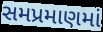
સમપ્રમાણમાં